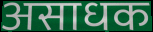
असाधक